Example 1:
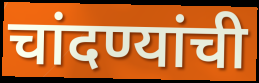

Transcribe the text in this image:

चांदण्यांची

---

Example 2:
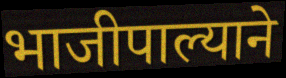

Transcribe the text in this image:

भाजीपाल्याने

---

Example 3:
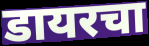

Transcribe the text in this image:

डायरचा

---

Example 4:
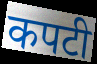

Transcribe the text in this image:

कपटी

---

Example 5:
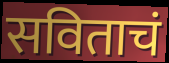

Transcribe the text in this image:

सविताचं